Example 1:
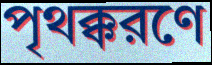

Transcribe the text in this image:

পৃথক্করণে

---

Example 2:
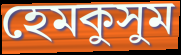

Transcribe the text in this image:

হেমকুসুম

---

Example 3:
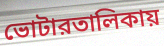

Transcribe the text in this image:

ভোটারতালিকায়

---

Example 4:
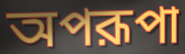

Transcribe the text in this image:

অপরূপা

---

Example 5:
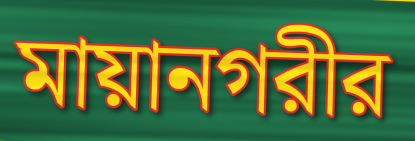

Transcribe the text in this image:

মায়ানগরীর